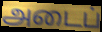
அடைப்